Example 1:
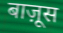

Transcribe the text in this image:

बाज़ूस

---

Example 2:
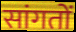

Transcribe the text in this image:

सांगतों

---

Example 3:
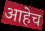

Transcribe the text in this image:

आहेच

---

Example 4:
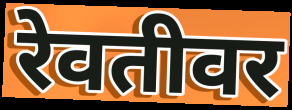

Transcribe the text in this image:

रेवतीवर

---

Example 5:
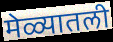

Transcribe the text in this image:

मेळ्यातली